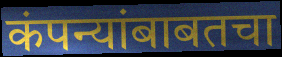
कंपन्यांबाबतचा